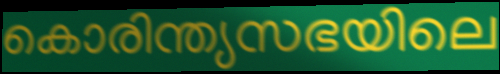
കൊരിന്ത്യസഭയിലെ